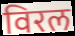
विरल